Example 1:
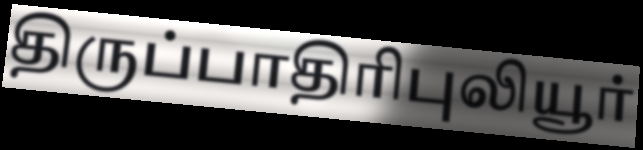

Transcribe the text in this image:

திருப்பாதிரிபுலியூர்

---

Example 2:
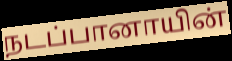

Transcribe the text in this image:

நடப்பானாயின்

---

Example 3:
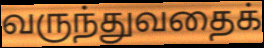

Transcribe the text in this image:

வருந்துவதைக்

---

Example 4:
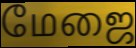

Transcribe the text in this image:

மேஜை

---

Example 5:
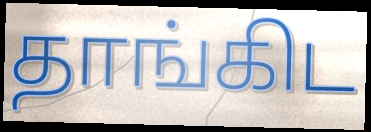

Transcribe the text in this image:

தாங்கிட